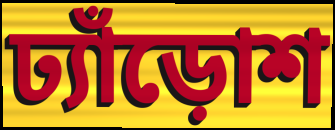
ঢ্যাঁড়োশ